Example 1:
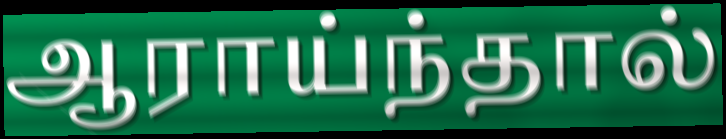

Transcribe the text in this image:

ஆராய்ந்தால்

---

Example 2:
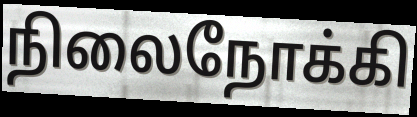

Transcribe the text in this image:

நிலைநோக்கி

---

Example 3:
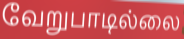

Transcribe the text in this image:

வேறுபாடில்லை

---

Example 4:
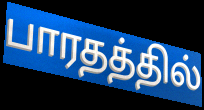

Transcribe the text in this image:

பாரதத்தில்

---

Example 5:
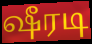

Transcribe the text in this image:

ஷீரடி